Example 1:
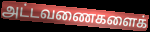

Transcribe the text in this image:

அட்டவணைகளைக்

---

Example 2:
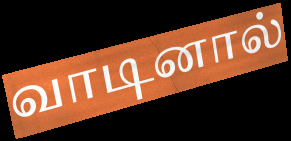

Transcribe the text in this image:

வாடினால்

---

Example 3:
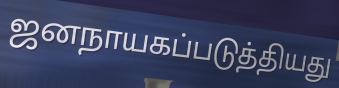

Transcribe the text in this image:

ஜனநாயகப்படுத்தியது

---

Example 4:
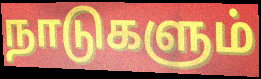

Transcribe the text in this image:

நாடுகளும்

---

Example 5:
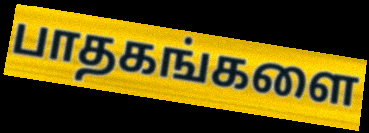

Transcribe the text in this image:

பாதகங்களை